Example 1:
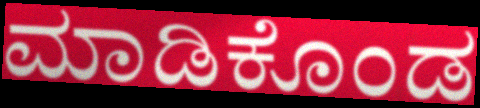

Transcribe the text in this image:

ಮಾಡಿಕೊಂಡ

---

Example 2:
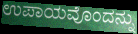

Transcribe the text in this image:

ಉಪಾಯವೊಂದನ್ನು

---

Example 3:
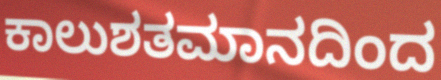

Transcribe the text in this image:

ಕಾಲುಶತಮಾನದಿಂದ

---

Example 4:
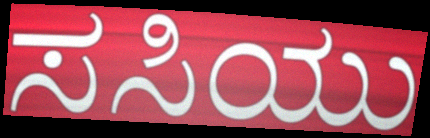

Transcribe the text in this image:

ಸಸಿಯು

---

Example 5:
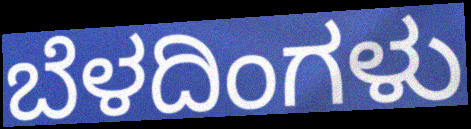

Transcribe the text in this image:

ಬೆಳದಿಂಗಳು